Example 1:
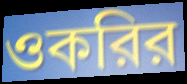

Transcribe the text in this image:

ওকরির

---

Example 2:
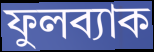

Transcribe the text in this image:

ফুলব্যাক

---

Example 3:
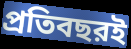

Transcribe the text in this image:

প্রতিবছরই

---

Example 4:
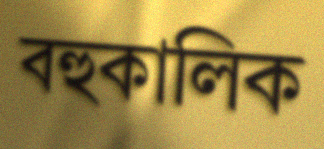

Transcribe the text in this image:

বহুকালিক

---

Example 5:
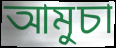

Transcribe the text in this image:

আমুচা